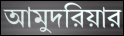
আমুদরিয়ার